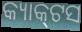
କ୍ୟାକ୍‌ଟସ